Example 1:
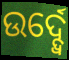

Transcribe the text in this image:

ଉର୍ଦ୍ଦ୍ୱେ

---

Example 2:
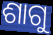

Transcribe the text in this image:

ଶାଗୁ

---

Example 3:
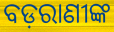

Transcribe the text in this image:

ବଡ଼ରାଣୀଙ୍କ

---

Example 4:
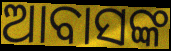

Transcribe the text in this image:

ଆବାସଙ୍କ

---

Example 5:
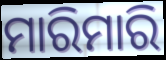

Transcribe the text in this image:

ମାରିମାରି